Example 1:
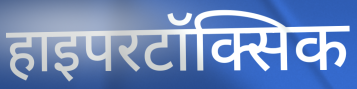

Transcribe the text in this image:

हाइपरटॉक्सिक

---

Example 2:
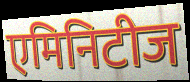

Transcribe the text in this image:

एमिनिटीज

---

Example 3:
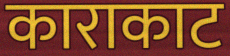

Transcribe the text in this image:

काराकाट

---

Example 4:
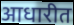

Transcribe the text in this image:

आधारीत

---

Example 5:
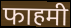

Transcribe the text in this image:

फाहमी